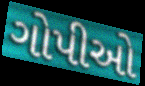
ગોપીઓ